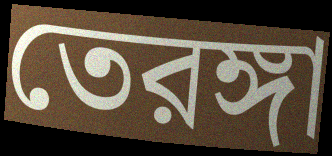
তেরঙ্গা